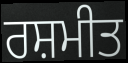
ਰਸ਼ਮੀਤ